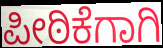
ಪೀಠಿಕೆಗಾಗಿ